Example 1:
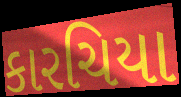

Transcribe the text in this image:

કારચિયા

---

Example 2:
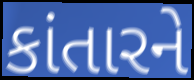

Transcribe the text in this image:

કાંતારને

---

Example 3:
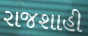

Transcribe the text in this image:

રાજશાહી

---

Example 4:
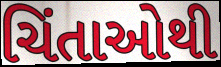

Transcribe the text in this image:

ચિંતાઓથી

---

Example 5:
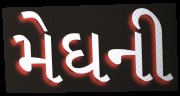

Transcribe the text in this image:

મેઘની